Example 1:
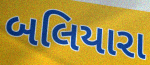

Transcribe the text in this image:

બલિયારા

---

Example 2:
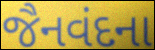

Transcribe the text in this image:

જૈનવંદના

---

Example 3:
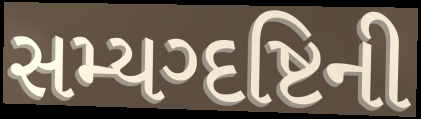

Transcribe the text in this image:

સમ્યગ્દષ્ટિની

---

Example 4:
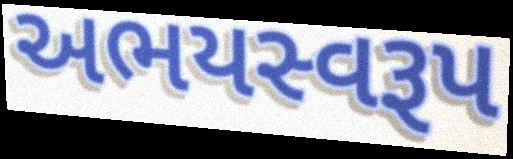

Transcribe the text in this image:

અભયસ્વરૂપ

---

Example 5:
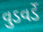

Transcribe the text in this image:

વુડવર્ડે